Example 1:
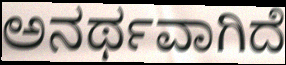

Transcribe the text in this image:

ಅನರ್ಥವಾಗಿದೆ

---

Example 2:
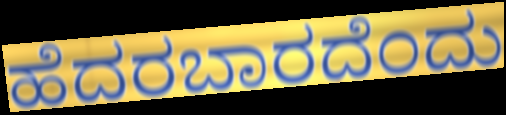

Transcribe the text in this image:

ಹೆದರಬಾರದೆಂದು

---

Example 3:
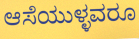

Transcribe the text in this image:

ಆಸೆಯುಳ್ಳವರೂ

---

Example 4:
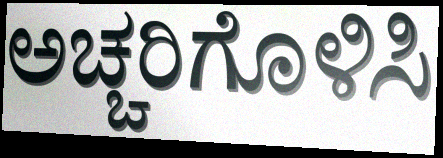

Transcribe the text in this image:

ಅಚ್ಚರಿಗೊಳಿಸಿ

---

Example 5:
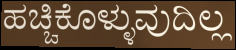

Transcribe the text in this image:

ಹಚ್ಚಿಕೊಳ್ಳುವುದಿಲ್ಲ